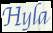
Hyla